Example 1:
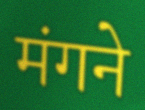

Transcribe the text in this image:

मंगने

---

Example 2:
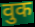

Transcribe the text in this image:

वुक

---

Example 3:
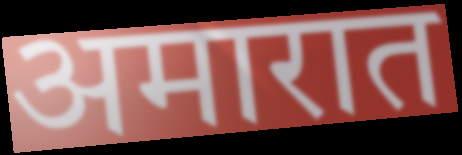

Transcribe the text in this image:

अमारात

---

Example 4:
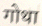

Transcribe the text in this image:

गोथा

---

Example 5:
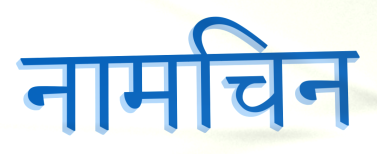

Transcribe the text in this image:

नामचिन